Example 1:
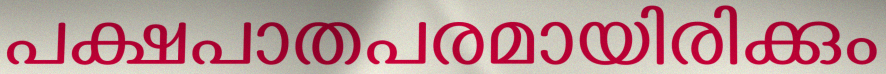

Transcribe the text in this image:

പക്ഷപാതപരമായിരിക്കും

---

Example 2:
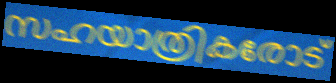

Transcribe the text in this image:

സഹയാത്രികരോട്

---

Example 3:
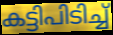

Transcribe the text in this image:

കട്ടിപിടിച്ച്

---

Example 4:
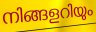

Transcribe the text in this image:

നിങ്ങളറിയും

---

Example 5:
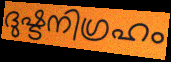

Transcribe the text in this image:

ദുഷ്ടനിഗ്രഹം